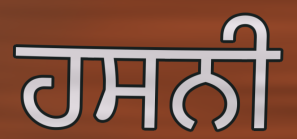
ਹਸਨੀ